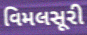
વિમલસૂરી